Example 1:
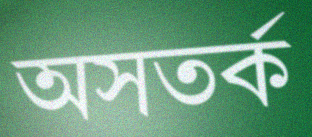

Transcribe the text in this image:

অসতর্ক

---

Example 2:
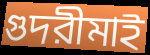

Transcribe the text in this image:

গুদরীমাই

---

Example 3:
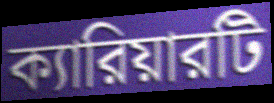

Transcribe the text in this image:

ক্যারিয়ারটি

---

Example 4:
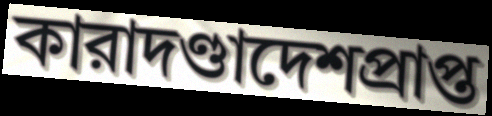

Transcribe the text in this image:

কারাদণ্ডাদেশপ্রাপ্ত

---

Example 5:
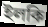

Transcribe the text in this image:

ইলকি